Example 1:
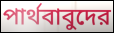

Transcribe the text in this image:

পার্থবাবুদের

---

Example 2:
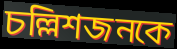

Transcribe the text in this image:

চল্লিশজনকে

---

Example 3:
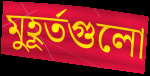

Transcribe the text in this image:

মুহূর্তগুলো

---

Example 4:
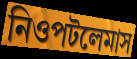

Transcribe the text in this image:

নিওপটলেমাস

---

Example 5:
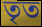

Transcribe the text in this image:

তৃত